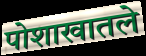
पोशाखातले